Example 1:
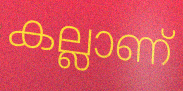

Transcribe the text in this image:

കല്ലാണ്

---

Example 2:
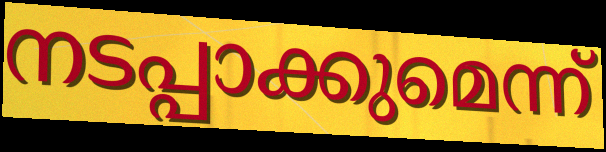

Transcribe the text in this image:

നടപ്പാക്കുമെന്ന്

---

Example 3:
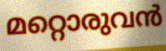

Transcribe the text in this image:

മറ്റൊരുവൻ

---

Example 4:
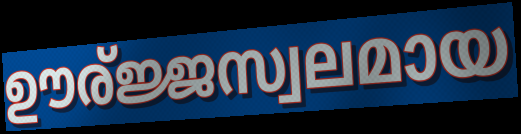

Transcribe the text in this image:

ഊര്ജ്ജസ്വലമായ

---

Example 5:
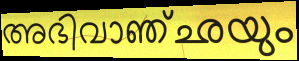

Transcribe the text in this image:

അഭിവാഞ്ഛയും